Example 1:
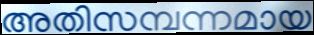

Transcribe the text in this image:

അതിസമ്പന്നമായ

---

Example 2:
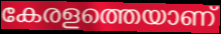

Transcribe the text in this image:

കേരളത്തെയാണ്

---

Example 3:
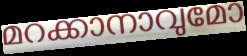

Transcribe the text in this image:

മറക്കാനാവുമോ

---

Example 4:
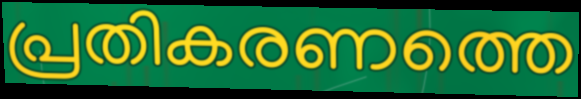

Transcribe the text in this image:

പ്രതികരണത്തെ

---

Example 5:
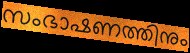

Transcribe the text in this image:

സംഭാഷണത്തിനും